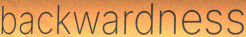
backwardness